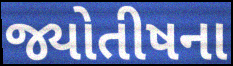
જ્યોતીષના